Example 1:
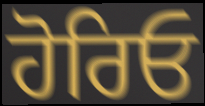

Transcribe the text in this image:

ਹੋਰਿਓ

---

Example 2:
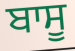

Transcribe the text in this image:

ਬਾਸੂ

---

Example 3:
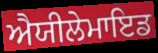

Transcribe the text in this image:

ਐਯੀਲੇਮਾਇਡ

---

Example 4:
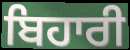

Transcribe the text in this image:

ਬਿਹਾਰੀ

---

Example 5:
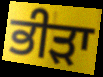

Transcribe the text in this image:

ਭੀੜਾ